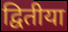
द्वितीया